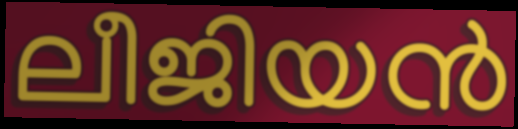
ലീജിയൻ